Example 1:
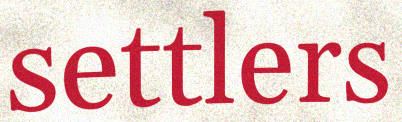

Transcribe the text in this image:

settlers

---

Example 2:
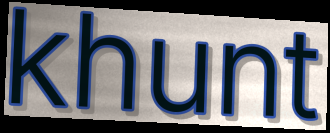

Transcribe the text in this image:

khunt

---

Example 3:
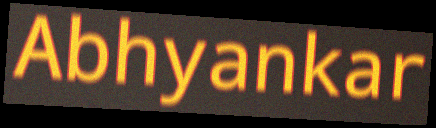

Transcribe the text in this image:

Abhyankar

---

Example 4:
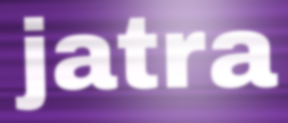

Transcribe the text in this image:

jatra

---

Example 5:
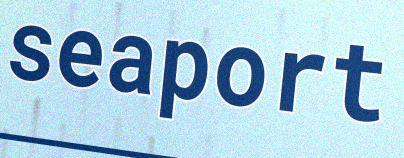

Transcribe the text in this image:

seaport